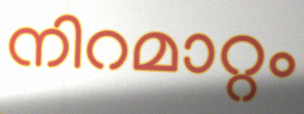
നിറമാറ്റം